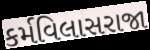
કર્મવિલાસરાજા